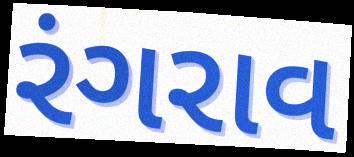
રંગરાવ